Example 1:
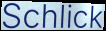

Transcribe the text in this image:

Schlick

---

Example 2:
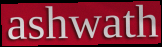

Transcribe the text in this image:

ashwath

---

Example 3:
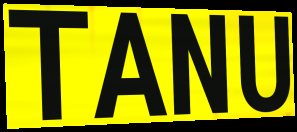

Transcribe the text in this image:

TANU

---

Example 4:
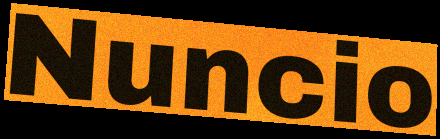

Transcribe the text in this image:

Nuncio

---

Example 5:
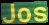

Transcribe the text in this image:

Jos